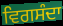
ਵਿਗਸੰਦਾ